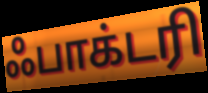
ஃபாக்டரி